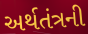
અર્થતંત્રની